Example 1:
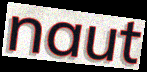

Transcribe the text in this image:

naut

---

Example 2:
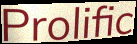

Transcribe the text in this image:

Prolific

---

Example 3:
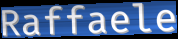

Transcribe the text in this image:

Raffaele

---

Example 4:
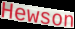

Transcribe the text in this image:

Hewson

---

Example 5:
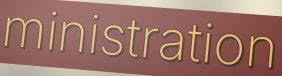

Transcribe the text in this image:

ministration